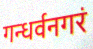
गन्धर्वनगरं